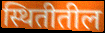
स्थितीतील